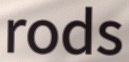
rods